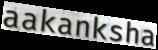
aakanksha